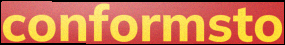
conformsto